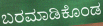
ಬರಮಾಡಿಕೊಂಡ